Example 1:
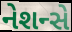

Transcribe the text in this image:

નેશન્સે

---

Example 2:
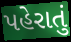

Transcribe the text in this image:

પહેરાતું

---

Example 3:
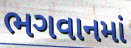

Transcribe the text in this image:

ભગવાનમાં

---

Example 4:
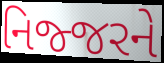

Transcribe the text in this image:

નિજ્જરને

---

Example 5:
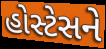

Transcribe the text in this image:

હોસ્ટેસને